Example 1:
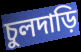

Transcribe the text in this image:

চুলদাড়ি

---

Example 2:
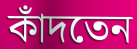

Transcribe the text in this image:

কাঁদতেন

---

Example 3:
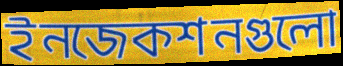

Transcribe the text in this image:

ইনজেকশনগুলো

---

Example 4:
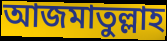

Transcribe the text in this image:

আজমাতুল্লাহ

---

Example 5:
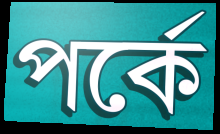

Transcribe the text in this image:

পর্কে